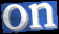
on